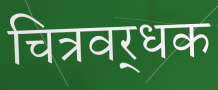
चित्रवर्धक